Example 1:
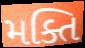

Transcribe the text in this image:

મક્તિ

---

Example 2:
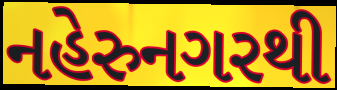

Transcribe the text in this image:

નહેરુનગરથી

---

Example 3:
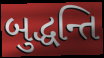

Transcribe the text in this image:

બુદ્ધન્તિ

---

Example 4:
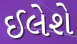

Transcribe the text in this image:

ઈલેશે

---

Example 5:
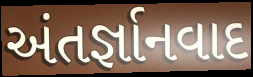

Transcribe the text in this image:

અંતર્જ્ઞાનવાદ